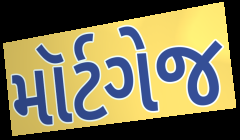
મૉર્ટગેજ